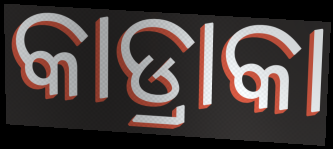
କାଡ୍ରାକା